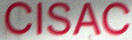
CISAC